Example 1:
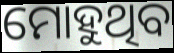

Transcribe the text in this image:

ମୋହୁଥିବ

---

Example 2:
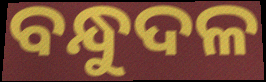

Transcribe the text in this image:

ବନ୍ଧୁଦଳ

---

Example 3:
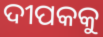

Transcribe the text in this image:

ଦୀପକକୁ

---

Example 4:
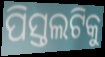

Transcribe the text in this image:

ପିସ୍ତଲଟିକୁ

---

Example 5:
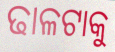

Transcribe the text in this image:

ଢାଳଟାକୁ